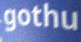
gothu